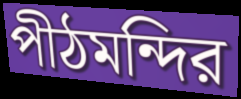
পীঠমন্দির